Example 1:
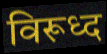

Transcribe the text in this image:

विरूध्द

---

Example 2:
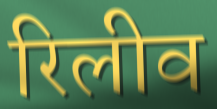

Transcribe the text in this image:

रिलीव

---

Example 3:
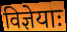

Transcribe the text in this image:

विज्ञेयाः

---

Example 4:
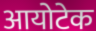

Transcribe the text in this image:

आयोटेक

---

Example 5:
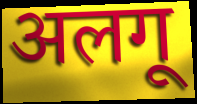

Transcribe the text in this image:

अलगू